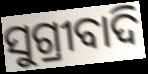
ସୁଗ୍ରୀବାଦି